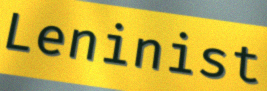
Leninist